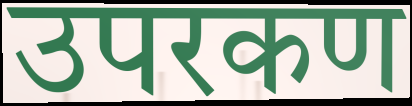
उपरकण